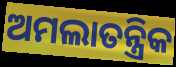
ଅମଲାତନ୍ତ୍ରିକ